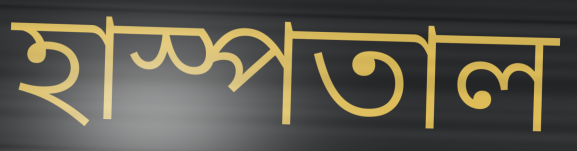
হাস্পতাল